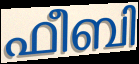
ഫീബി